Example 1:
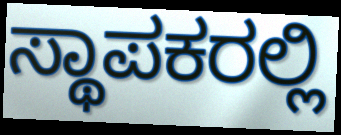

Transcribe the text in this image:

ಸ್ಥಾಪಕರಲ್ಲಿ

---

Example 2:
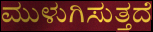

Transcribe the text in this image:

ಮುಳುಗಿಸುತ್ತದೆ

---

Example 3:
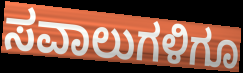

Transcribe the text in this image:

ಸವಾಲುಗಳಿಗೂ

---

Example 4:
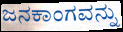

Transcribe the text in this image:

ಜನಕಾಂಗವನ್ನು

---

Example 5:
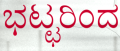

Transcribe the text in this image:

ಭಟ್ಟರಿಂದ